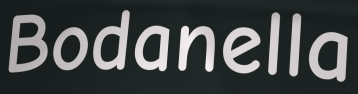
Bodanella